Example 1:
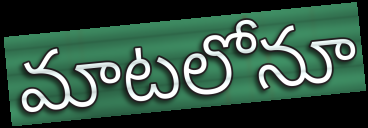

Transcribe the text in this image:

మాటలోనూ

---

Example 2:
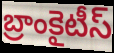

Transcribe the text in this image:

బ్రాంకైటీస్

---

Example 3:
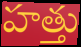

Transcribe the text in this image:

హత్తు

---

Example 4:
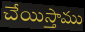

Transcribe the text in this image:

చేయిస్తాము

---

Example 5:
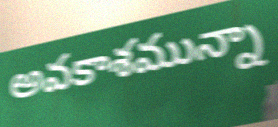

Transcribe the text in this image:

అవకాశమున్నా